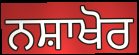
ਨਸ਼ਾਖੋਰ